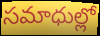
సమాధుల్లో